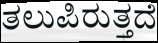
ತಲುಪಿರುತ್ತದೆ